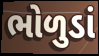
ભોળુડાં